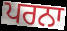
ਪਰਨਾ